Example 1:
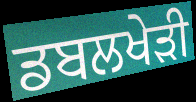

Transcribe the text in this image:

ਡਬਲਖੇੜੀ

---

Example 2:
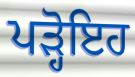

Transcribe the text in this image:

ਪੜ੍ਹੋਇਹ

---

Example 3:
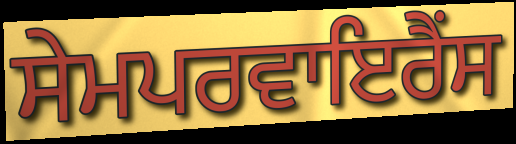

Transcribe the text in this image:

ਸੇਮਪਰਵਾਇਰੈਂਸ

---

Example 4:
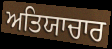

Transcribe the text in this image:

ਅਤਿਯਾਚਾਰ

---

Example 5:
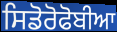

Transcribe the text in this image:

ਸਿਡੋਰੋਫੋਬੀਆ